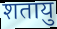
शतायु